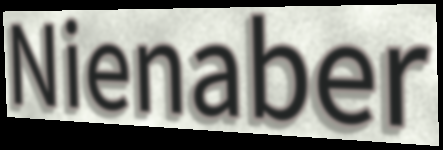
Nienaber